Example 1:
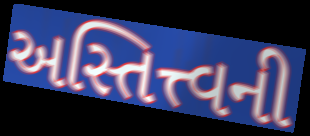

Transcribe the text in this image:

અસ્તિત્ત્વની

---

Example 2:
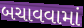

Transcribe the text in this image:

બચાવવામાં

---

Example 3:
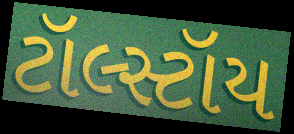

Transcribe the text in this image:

ટૉલ્સ્ટૉય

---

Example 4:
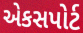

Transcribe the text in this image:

એકસપોર્ટ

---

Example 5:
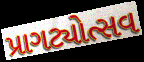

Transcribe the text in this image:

પ્રાગટ્યોત્સવ